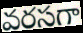
వరసగా